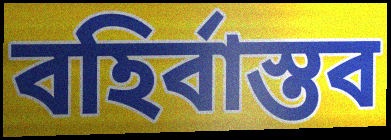
বহির্বাস্তব